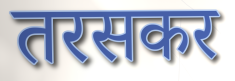
तरसकर